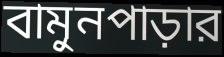
বামুনপাড়ার